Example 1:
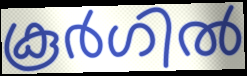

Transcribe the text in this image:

കൂർഗിൽ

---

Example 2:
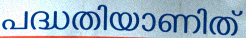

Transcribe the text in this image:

പദ്ധതിയാണിത്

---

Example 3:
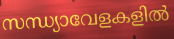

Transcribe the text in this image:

സന്ധ്യാവേളകളിൽ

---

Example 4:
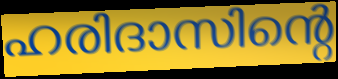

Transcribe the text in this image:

ഹരിദാസിന്റെ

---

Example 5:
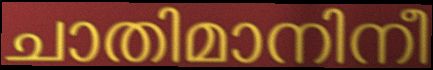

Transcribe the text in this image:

ചാതിമാനിനീ